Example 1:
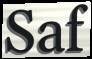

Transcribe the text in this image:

Saf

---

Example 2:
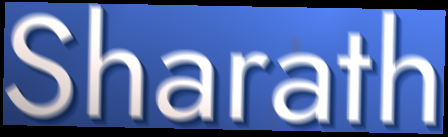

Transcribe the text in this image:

Sharath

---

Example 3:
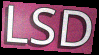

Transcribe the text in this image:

LSD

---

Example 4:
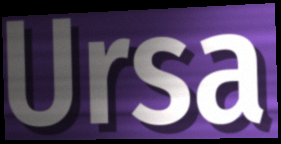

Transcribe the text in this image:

Ursa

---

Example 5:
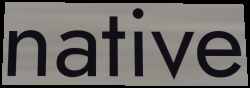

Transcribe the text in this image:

native